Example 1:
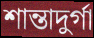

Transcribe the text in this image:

শান্তাদুর্গা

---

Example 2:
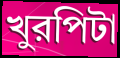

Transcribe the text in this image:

খুরপিটা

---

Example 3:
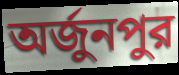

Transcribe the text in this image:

অর্জুনপুর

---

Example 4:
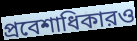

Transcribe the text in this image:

প্রবেশাধিকারও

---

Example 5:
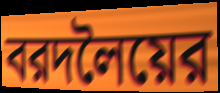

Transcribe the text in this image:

বরদলৈয়ের